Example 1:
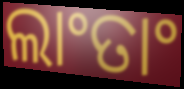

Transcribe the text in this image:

ଲାଂତାଂ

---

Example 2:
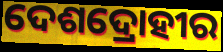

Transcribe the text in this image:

ଦେଶଦ୍ରୋହୀର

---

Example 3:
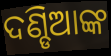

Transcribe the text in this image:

ଦଣ୍ଡିଆଙ୍କ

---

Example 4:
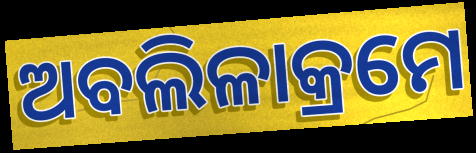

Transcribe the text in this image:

ଅବଲିଳାକ୍ରମେ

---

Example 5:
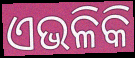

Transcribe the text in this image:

ଏଭଳିକି